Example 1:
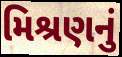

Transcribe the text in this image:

મિશ્રણનું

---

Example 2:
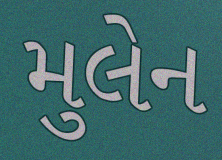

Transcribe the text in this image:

મુલેન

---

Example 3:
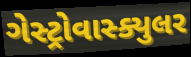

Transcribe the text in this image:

ગેસ્ટ્રોવાસ્ક્યુલર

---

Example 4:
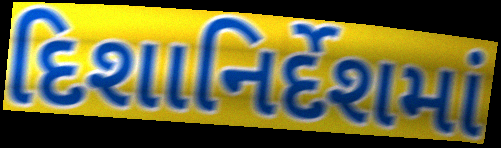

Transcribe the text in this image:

દિશાનિર્દેશમાં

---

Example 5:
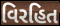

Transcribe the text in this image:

વિરહિત